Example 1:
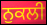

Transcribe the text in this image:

ਨੁਕਲੀ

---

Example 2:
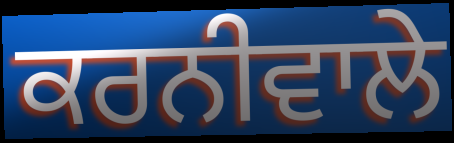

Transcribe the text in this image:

ਕਰਨੀਵਾਲੇ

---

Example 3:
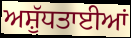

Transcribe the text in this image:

ਅਸ਼ੁੱਧਤਾਈਆਂ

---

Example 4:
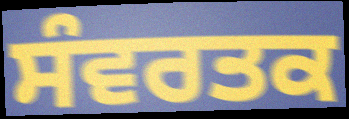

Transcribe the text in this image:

ਸੰਵਰਤਕ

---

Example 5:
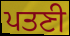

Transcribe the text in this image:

ਪਤਣੀ